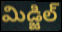
మిడ్జిల్